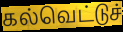
கல்வெட்டுச்